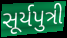
સૂર્યપુત્રી